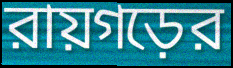
রায়গড়ের